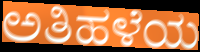
ಅತಿಹಳೆಯ